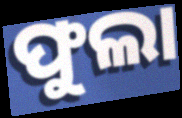
ଫୁଲା